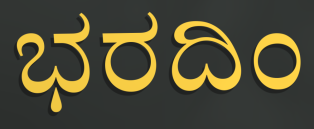
ಭರದಿಂ